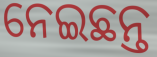
ନେଇଛନ୍ତ